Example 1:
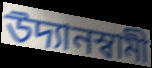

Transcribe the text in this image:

উদ্যানস্বামী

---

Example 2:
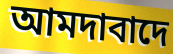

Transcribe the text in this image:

আমদাবাদে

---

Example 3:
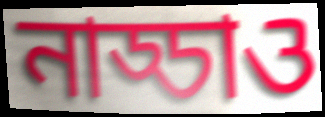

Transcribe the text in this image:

নাড্ডাও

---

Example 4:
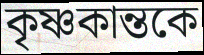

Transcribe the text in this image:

কৃষ্ণকান্তকে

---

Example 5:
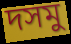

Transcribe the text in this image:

দসমু